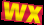
wx